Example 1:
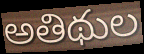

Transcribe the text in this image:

అతిథుల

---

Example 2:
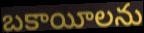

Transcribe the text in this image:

బకాయీలను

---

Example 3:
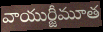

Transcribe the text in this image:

వాయుర్జీమూత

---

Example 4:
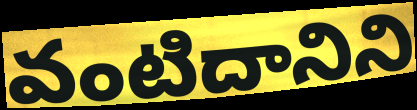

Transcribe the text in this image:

వంటిదానిని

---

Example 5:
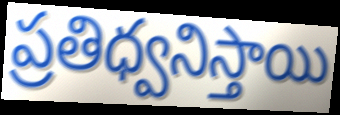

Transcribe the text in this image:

ప్రతిధ్వనిస్తాయి